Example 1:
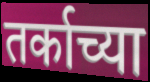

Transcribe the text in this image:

तर्काच्या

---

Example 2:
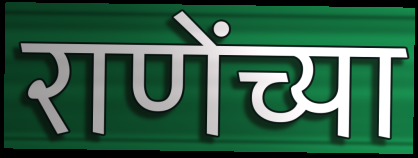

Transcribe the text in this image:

राणेंच्या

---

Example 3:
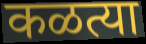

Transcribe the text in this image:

कळत्या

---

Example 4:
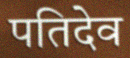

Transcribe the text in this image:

पतिदेव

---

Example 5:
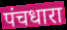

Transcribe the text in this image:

पंचधारा